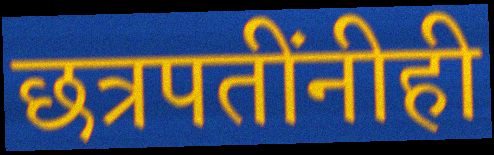
छत्रपतींनीही